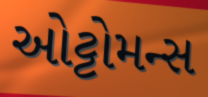
ઓટ્ટોમન્સ